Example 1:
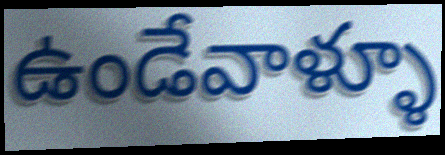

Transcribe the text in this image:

ఉండేవాళ్ళూ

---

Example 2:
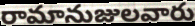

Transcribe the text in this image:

రామానుజులవారు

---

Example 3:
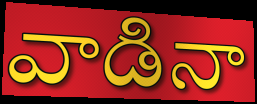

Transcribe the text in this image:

వాడినా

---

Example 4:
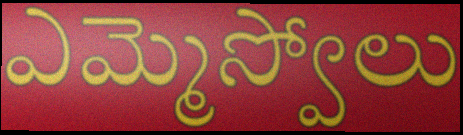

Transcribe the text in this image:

ఎమ్మెస్వోలు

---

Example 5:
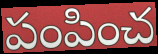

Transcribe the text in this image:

పంపించ